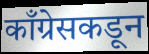
काँग्रेसकडून